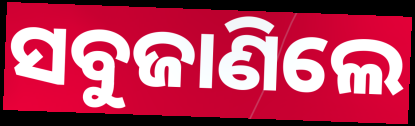
ସବୁଜାଣିଲେ